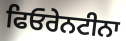
ਫਿਓਰੇਨਟੀਨਾ